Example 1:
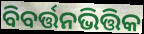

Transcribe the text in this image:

ବିବର୍ତ୍ତନଭିତ୍ତିକ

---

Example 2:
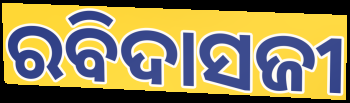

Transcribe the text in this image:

ରବିଦାସଜୀ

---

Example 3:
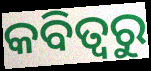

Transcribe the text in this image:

କବିତ୍ଵରୁ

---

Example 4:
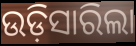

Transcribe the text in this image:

ଉଡ଼ିସାରିଲା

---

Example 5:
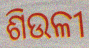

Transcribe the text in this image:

ଶିଉଳୀ